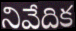
నివేదిక